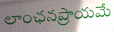
లాంఛనప్రాయమే